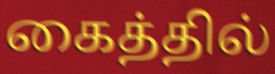
கைத்தில்